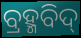
ବ୍ରହ୍ମବିଦ୍